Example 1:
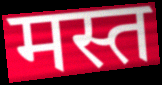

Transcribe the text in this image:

मस्त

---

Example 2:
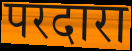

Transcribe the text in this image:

परदारा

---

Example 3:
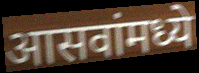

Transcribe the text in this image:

आसवांमध्ये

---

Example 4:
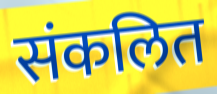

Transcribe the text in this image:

संकलित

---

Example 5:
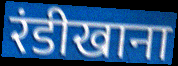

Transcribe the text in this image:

रंडीखाना